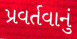
પ્રવર્તવાનું